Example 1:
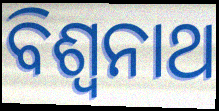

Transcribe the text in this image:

ବିଶ୍ୱନାଥ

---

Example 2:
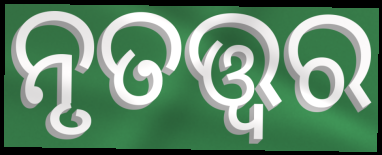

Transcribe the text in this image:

ନୃତତ୍ତ୍ଵର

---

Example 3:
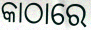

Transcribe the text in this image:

କାଠାରେ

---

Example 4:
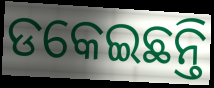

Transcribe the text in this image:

ଡକେଇଛନ୍ତି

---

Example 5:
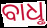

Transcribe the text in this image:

ବାଧୢ